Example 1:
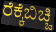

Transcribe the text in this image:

ರೆಕ್ಕೆಬಿಚ್ಚಿ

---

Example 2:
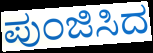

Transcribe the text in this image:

ಪುಂಜಿಸಿದ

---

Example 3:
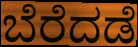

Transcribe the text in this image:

ಬೆರೆದಡೆ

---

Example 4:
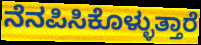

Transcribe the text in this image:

ನೆನಪಿಸಿಕೊಳ್ಳುತ್ತಾರೆ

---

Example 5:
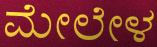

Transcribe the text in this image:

ಮೇಲೇಳ